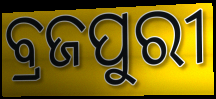
ବ୍ରଜପୁରୀ